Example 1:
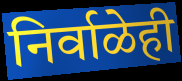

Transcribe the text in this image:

निर्वाळेही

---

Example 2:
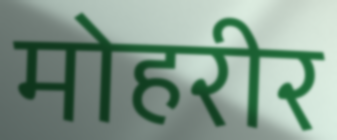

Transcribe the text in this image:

मोहरीर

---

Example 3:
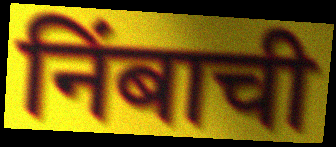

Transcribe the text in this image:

निंबाची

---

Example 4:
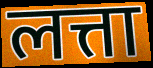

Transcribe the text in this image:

लत्ता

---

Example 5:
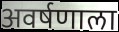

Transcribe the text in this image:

अवर्षणाला